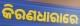
କିରଣଧାରାରେ